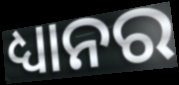
ଧ୍ୟାନର